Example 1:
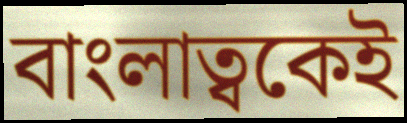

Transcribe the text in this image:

বাংলাত্বকেই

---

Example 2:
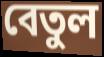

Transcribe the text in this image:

বেতুল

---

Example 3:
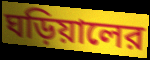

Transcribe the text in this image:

ঘড়িয়ালের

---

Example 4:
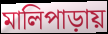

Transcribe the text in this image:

মালিপাড়ায়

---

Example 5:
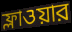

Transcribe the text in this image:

ফ্লাওয়ার